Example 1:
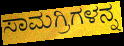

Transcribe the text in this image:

ಸಾಮಗ್ರಿಗಳನ್ನ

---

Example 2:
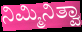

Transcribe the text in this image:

ನಿಮ್ಮಿನಿತ್ವಾ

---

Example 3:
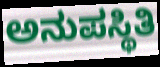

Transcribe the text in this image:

ಅನುಪಸ್ಥಿತಿ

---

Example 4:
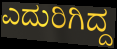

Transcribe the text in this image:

ಎದುರಿಗಿದ್ದ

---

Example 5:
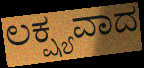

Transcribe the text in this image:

ಲಕ್ಷ್ಯವಾದ